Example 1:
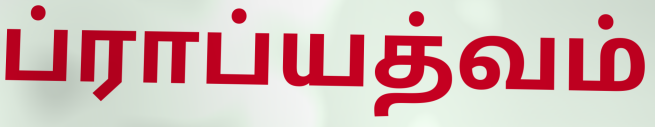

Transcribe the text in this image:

ப்ராப்யத்வம்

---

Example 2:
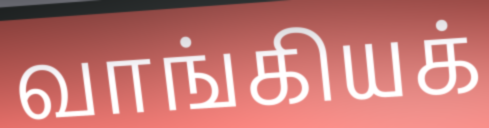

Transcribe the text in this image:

வாங்கியக்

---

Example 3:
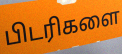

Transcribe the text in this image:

பிடரிகளை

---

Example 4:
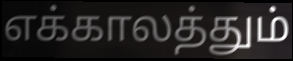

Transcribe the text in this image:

எக்காலத்தும்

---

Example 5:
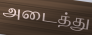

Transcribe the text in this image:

அடைத்து